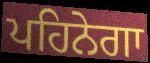
ਪਹਿਨੇਗਾ